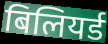
बिलियर्ड